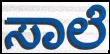
ಸಾಲೆ